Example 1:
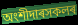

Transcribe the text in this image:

অংশীদাৰসকলৰ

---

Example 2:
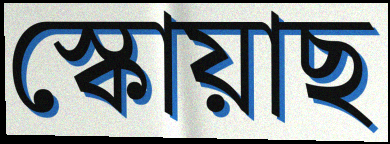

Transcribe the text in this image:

স্কোয়াছ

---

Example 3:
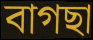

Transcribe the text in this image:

বাগছা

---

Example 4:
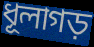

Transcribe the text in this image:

ধূলাগড়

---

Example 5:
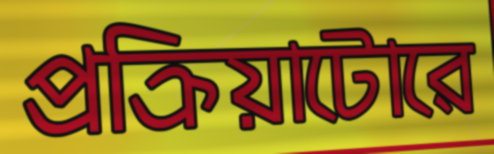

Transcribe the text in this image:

প্ৰক্ৰিয়াটোৱে